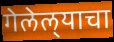
गेलेल्याचा